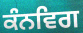
ਕੰਨਵਿਗ